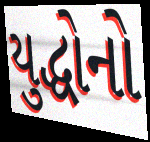
યુદ્ધોનો